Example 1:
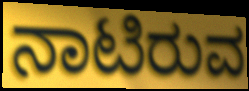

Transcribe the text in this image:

ನಾಟಿರುವ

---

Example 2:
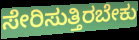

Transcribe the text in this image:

ಸೇರಿಸುತ್ತಿರಬೇಕು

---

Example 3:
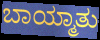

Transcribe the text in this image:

ಬಾಯ್ಮಾತು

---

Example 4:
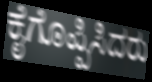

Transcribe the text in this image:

ಕೈಗೊಪ್ಪಿಸಿದರು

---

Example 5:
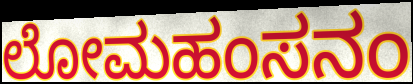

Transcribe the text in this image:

ಲೋಮಹಂಸನಂ